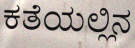
ಕತೆಯಲ್ಲಿನ